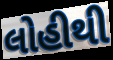
લોહીથી